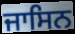
ਜਾਸਿਨ